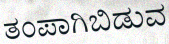
ತಂಪಾಗಿಬಿಡುವ